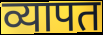
व्यापत